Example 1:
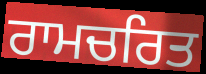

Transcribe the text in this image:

ਰਾਮਚਰਿਤ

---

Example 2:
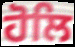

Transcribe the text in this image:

ਹੋਲਿ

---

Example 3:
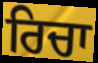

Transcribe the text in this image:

ਰਿਚਾ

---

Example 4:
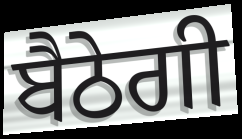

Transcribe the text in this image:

ਬੈਠੇਗੀ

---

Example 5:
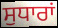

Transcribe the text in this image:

ਸੁਧਾਰਾਂ